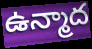
ఉన్మాద